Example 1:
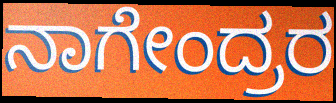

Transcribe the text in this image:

ನಾಗೇಂದ್ರರ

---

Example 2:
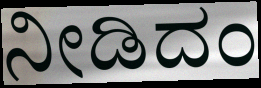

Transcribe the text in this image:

ನೀಡಿದಂ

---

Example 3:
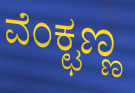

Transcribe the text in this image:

ವೆಂಕ್ಟಣ್ಣ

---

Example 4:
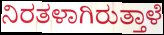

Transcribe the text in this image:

ನಿರತಳಾಗಿರುತ್ತಾಳೆ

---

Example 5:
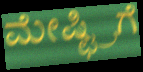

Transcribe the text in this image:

ಮೇಷ್ಟ್ರಿಗೆ